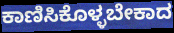
ಕಾಣಿಸಿಕೊಳ್ಳಬೇಕಾದ